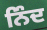
ਨਿੰਦ